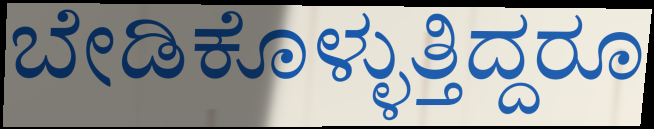
ಬೇಡಿಕೊಳ್ಳುತ್ತಿದ್ದರೂ